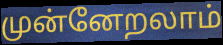
முன்னேறலாம்